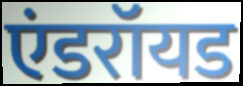
एंडरॉयड